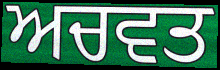
ਅਚਵਤ